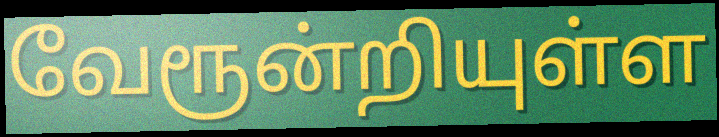
வேரூன்றியுள்ள